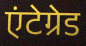
एंटेग्रेड